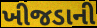
ખીજડાની